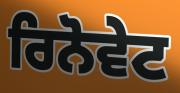
ਰਿਨੋਵੇਟ